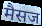
मैसज